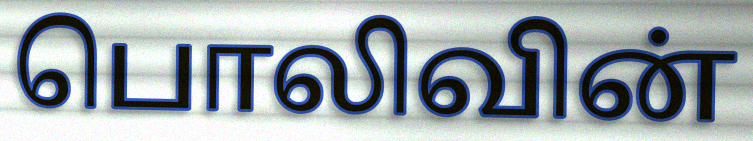
பொலிவின்